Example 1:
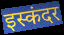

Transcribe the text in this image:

इस्कंदर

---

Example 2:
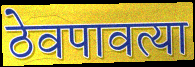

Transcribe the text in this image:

ठेवपावत्या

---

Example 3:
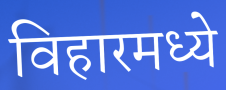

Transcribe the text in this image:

विहारमध्ये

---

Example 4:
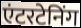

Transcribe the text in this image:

एंटरटेनिंग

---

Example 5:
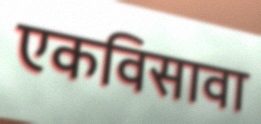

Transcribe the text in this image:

एकविसावा